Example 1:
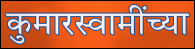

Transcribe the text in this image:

कुमारस्वामींच्या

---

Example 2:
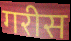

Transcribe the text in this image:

गरीस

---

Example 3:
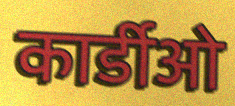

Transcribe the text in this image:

कार्डीओ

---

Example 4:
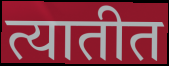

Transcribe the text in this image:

त्यातीत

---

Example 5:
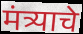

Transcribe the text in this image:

मंत्र्याचे